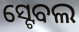
ସ୍ଟେବଲ